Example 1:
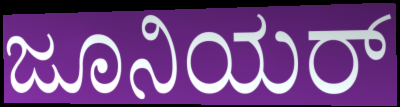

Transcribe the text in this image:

ಜೂನಿಯರ್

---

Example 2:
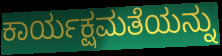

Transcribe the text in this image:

ಕಾರ್ಯಕ್ಷಮತೆಯನ್ನು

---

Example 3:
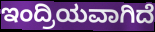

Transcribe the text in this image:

ಇಂದ್ರಿಯವಾಗಿದೆ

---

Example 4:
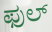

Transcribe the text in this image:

ಫುಲ್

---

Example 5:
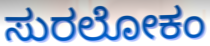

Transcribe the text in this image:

ಸುರಲೋಕಂ